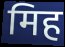
मिह